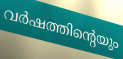
വർഷത്തിന്റെയും